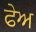
ਫੇਅ